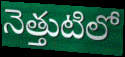
నెత్తుటిలో